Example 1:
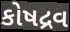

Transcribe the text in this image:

કોષદ્રવ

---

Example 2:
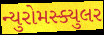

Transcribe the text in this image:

ન્યુરોમસ્ક્યુલર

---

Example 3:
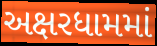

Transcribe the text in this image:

અક્ષરધામમાં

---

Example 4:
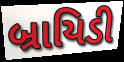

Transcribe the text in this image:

બ્રાયિડી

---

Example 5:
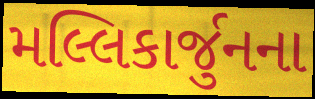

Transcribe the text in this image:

મલ્લિકાર્જુનના